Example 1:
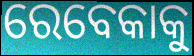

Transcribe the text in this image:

ରେବେକାକୁ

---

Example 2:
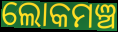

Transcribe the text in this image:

ଲୋକମଞ୍ଚ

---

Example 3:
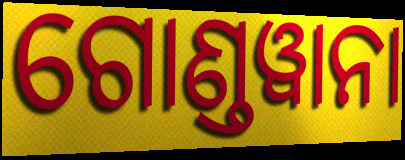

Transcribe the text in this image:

ଗୋଣ୍ଡୱାନା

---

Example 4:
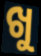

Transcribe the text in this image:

ଖୁ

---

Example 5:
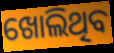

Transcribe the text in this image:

ଖୋଲିଥିବ